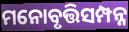
ମନୋବୃତ୍ତିସମ୍ପନ୍ନ